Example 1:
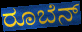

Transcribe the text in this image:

ರೂಬೆನ್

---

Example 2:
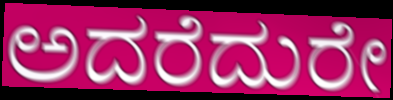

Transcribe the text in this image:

ಅದರೆದುರೇ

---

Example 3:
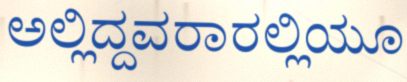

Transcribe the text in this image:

ಅಲ್ಲಿದ್ದವರಾರಲ್ಲಿಯೂ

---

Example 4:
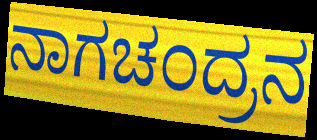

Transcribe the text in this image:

ನಾಗಚಂದ್ರನ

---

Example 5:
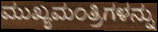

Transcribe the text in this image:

ಮುಖ್ಯಮಂತ್ರಿಗಳನ್ನು